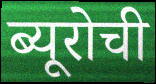
ब्यूरोची